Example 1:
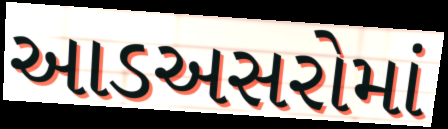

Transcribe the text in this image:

આડઅસરોમાં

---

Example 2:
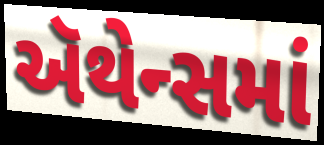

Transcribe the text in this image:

ઍથેન્સમાં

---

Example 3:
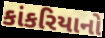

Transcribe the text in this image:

કાંકરિયાનો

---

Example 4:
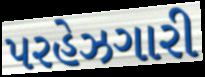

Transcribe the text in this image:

પરહેઝગારી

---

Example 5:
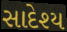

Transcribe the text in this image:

સાદેશ્ય